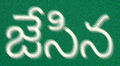
జేసిన